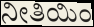
ನೀತಿಯಿಂ